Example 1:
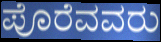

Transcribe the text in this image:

ಪೊರೆವವರು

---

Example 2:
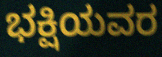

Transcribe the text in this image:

ಭಕ್ಷಿಯವರ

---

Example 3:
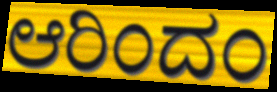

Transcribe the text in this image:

ಆರಿಂದಂ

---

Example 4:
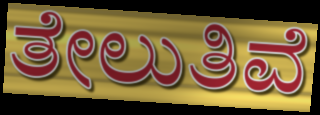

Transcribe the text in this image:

ತೇಲುತಿವೆ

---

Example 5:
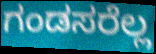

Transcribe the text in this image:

ಗಂಡಸರೆಲ್ಲ